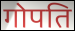
गोपति